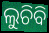
ଲୁଚିବି